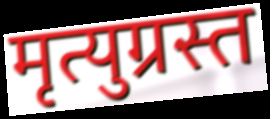
मृत्युग्रस्त